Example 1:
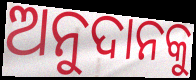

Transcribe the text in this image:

ଅନୁଦାନକୁ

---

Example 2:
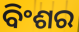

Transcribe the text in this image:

ବିଂଶର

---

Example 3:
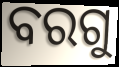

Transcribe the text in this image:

ବରଗୁ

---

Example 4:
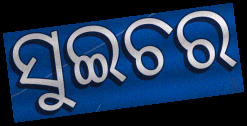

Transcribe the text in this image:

ସୁଇଚର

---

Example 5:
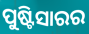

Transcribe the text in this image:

ପୁଷ୍ଟିସାରର